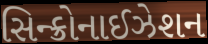
સિન્ક્રોનાઈઝેશન